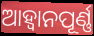
ଆହ୍ବାନପୂର୍ଣ୍ଣ